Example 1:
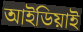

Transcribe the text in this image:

আইডিয়াই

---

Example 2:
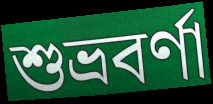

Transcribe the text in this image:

শুভ্রবর্ণা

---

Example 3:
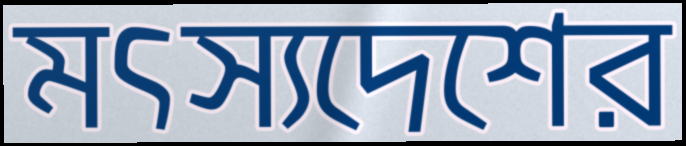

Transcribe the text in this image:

মৎস্যদেশের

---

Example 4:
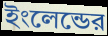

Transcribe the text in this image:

ইংলেন্ডের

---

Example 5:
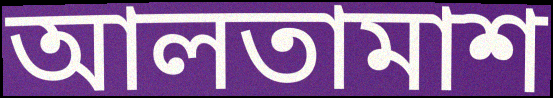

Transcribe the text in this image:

আলতামাশ